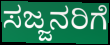
ಸಜ್ಜನರಿಗೆ